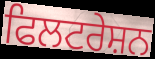
ਫਿਲਟਰੇਸ਼ਨ